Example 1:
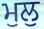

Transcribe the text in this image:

ਮੁਲੁ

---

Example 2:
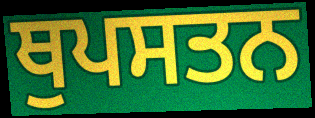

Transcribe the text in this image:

ਥੁਪਸਤਨ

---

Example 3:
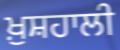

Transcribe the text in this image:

ਖ਼ੁਸ਼ਹਾਲੀ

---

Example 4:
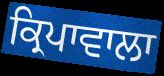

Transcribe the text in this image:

ਕ੍ਰਿਪਾਵਾਲਾ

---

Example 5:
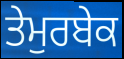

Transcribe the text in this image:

ਤੇਮੁਰਬੇਕ